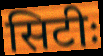
सिटीः